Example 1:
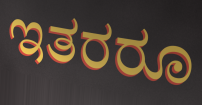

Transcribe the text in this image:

ಇತರರೂ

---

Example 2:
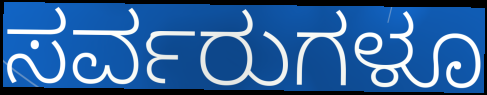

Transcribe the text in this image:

ಸರ್ವರುಗಳೂ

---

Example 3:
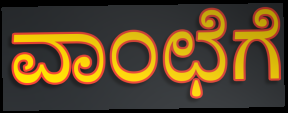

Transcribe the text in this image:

ವಾಂಛೆಗೆ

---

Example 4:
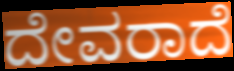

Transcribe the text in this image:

ದೇವರಾದೆ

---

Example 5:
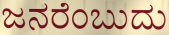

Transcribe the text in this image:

ಜನರೆಂಬುದು